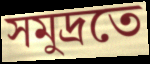
সমুদ্ৰতে